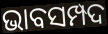
ଭାବସମ୍ପଦ